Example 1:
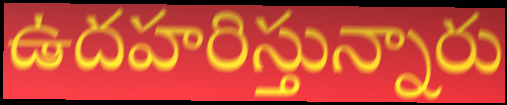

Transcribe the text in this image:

ఉదహరిస్తున్నారు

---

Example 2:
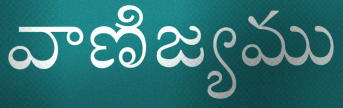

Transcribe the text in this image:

వాణిజ్యము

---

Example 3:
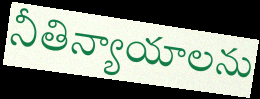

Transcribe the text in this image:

నీతిన్యాయాలను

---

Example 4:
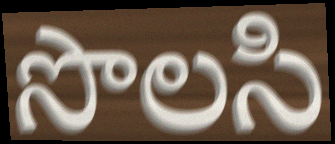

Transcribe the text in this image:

సొలసి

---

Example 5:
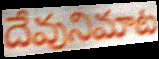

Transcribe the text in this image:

దేవునిమాట